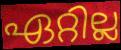
ഏറ്റില്ല